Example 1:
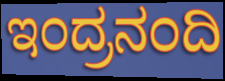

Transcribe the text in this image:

ಇಂದ್ರನಂದಿ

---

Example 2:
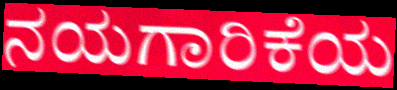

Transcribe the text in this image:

ನಯಗಾರಿಕೆಯ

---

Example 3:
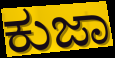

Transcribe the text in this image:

ಕುಜಾ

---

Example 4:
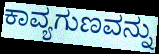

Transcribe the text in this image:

ಕಾವ್ಯಗುಣವನ್ನು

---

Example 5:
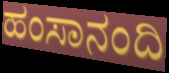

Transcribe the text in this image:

ಹಂಸಾನಂದಿ